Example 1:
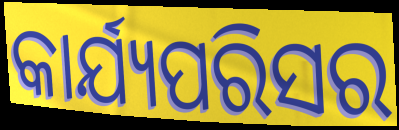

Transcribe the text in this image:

କାର୍ଯ୍ୟପରିସର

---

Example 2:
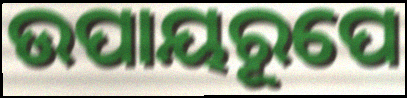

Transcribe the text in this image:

ଉପାୟରୂପେ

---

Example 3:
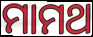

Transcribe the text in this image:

ମାମଥ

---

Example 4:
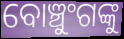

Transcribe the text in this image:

ବୋଞ୍ଚୁଂଗଙ୍କୁ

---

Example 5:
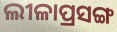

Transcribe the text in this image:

ଲୀଳାପ୍ରସଙ୍ଗ